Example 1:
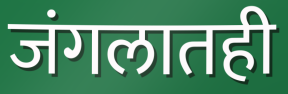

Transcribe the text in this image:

जंगलातही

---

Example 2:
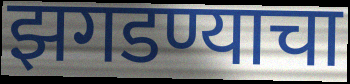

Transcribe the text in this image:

झगडण्याचा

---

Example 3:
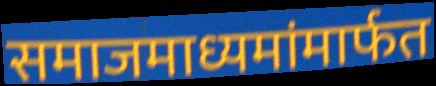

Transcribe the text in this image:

समाजमाध्यमांमार्फत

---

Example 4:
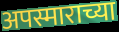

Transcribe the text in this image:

अपस्माराच्या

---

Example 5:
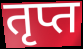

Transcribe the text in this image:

तृप्त